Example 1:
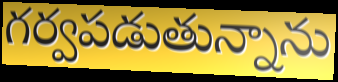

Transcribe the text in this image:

గర్వపడుతున్నాను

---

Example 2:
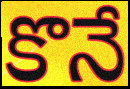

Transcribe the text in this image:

కొనే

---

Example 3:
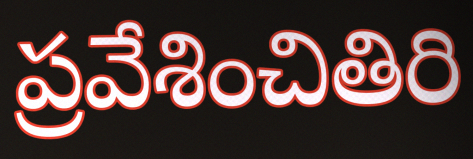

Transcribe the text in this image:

ప్రవేశించితిరి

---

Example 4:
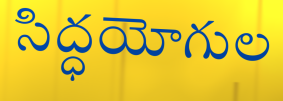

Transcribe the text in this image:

సిద్ధయోగుల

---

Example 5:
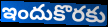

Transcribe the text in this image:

ఇందుకొరకు